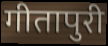
गीतापुरी